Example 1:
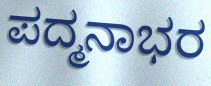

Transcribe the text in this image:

ಪದ್ಮನಾಭರ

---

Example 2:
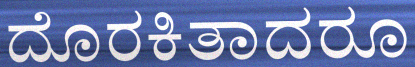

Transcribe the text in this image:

ದೊರಕಿತಾದರೂ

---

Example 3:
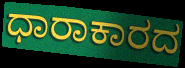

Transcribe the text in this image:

ಧಾರಾಕಾರದ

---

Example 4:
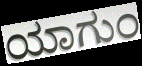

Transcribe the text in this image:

ಯಾಗುಂ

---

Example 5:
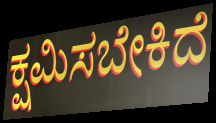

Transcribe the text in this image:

ಕ್ಷಮಿಸಬೇಕಿದೆ